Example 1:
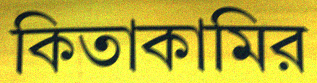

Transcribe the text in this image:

কিতাকামির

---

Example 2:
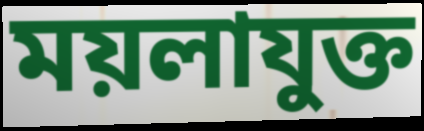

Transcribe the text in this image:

ময়লাযুক্ত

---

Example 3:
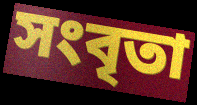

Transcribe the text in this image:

সংবৃতা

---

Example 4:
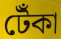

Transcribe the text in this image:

টেঁকা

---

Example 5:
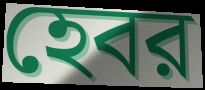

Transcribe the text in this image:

হেবর